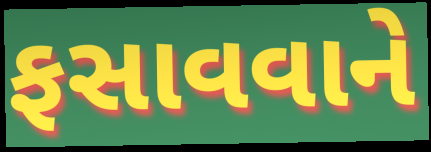
ફસાવવાને